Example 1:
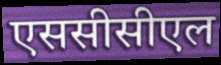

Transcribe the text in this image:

एससीसीएल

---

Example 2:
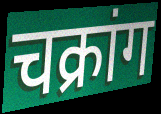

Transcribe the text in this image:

चक्रांग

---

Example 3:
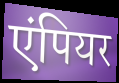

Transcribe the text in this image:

एंपियर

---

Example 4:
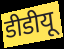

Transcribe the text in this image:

डीडीयू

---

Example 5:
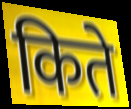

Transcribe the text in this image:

किते